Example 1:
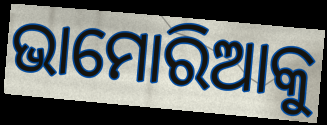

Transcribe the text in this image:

ଭାମୋରିଆକୁ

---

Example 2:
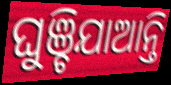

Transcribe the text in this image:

ଘୁଞ୍ଚିଯାଆନ୍ତି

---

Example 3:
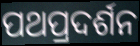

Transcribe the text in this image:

ପଥପ୍ରଦର୍ଶନ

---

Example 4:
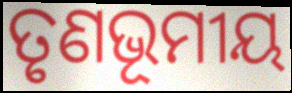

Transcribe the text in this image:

ତୃଣଭୂମୀୟ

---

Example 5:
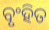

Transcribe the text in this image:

ବୃଂହିତ